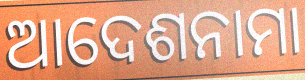
ଆଦେଶନାମା